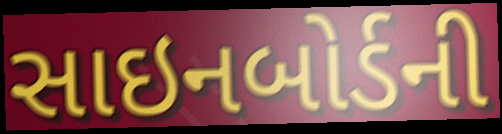
સાઇનબોર્ડની